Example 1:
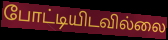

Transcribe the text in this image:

போட்டியிடவில்லை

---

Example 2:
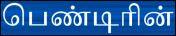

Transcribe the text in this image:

பெண்டிரின்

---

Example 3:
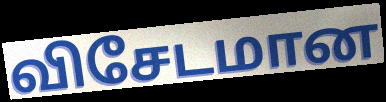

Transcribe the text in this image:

விசேடமான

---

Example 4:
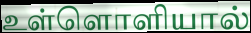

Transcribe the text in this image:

உள்ளொளியால்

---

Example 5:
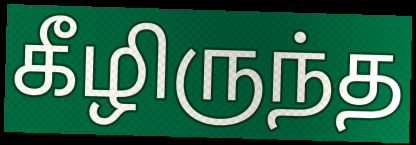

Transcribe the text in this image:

கீழிருந்த